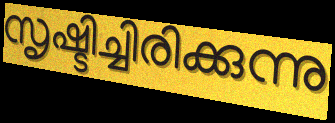
സൃഷ്ടിച്ചിരിക്കുന്നു